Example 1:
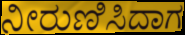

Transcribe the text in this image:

ನೀರುಣಿಸಿದಾಗ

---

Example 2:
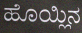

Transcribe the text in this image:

ಹೊಯ್ಲಿನ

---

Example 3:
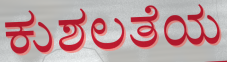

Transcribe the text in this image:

ಕುಶಲತೆಯ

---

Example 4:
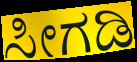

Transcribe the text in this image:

ಸೀಗಡಿ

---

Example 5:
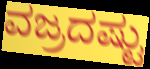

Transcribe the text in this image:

ವಜ್ರದಷ್ಟು